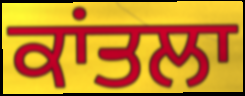
ਕਾਂਤਲਾ